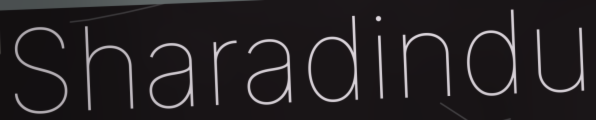
Sharadindu